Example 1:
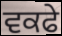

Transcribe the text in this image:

ਵਕਫੇ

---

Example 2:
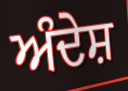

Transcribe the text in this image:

ਅੰਦੇਸ਼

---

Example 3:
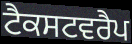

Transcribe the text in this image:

ਟੈਕਸਟਵਰੈਪ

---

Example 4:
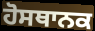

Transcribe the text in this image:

ਹੋਸਥਾਨਕ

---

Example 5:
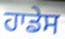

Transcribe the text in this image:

ਹਾਡੇਸ